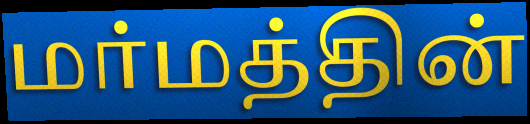
மர்மத்தின்